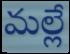
మల్లే